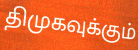
திமுகவுக்கும்